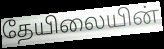
தேயிலையின்